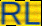
RL